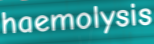
haemolysis